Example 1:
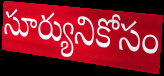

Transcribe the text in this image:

సూర్యునికోసం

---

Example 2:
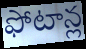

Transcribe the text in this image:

ఫోటాన్ల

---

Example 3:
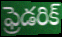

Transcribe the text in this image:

ఫ్రెడరిక్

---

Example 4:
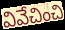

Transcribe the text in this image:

వివేచించి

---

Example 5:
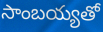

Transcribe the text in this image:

సాంబయ్యతో